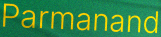
Parmanand